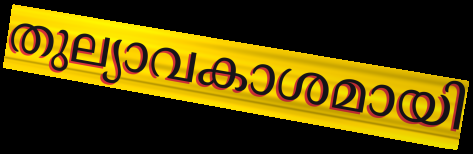
തുല്യാവകാശമായി